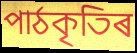
পাঠকৃতিৰ